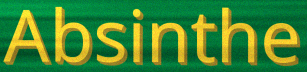
Absinthe